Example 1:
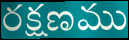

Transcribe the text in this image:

రక్షణము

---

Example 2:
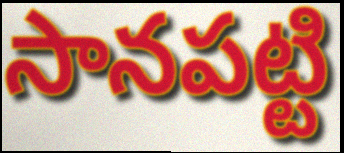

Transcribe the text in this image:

సానపట్టి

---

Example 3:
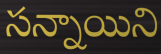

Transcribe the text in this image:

సన్నాయిని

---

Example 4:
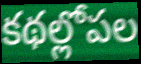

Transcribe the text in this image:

కథల్లోపల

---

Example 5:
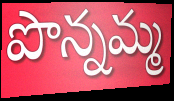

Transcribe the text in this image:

పొన్నమ్మ